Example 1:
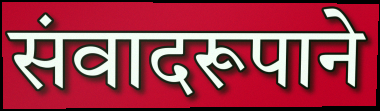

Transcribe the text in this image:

संवादरूपाने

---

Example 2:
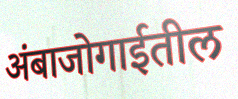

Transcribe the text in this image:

अंबाजोगाईतील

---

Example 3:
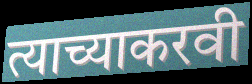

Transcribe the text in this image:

त्याच्याकरवी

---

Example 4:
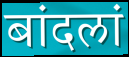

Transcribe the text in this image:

बांदलां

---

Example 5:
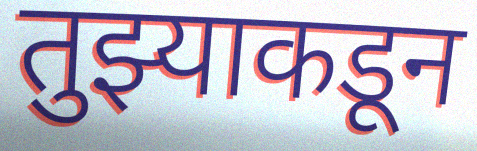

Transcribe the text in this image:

तुझ्याकडून